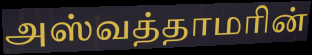
அஸ்வத்தாமரின்